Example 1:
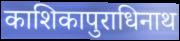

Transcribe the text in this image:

काशिकापुराधिनाथ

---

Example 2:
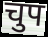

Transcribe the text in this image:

चुप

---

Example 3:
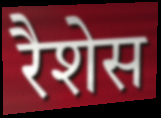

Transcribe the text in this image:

रैशेस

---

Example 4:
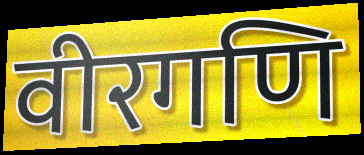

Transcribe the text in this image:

वीरगणि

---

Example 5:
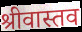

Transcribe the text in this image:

श्रीवास्तव